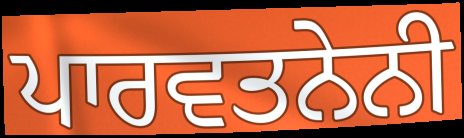
ਪਾਰਵਤਨੇਨੀ